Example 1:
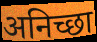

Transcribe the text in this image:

अनिच्छा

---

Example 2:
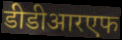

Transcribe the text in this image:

डीडीआरएफ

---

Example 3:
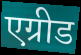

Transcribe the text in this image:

एग्रीड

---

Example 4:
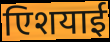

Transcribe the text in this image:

एिशयाई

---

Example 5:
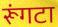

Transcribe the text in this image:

रूंगटा